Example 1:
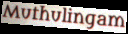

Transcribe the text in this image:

Muthulingam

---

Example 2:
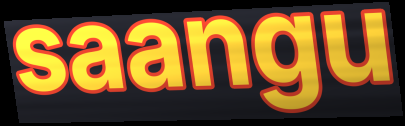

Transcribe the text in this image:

saangu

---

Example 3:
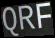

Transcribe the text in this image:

QRF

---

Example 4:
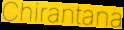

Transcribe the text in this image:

Chirantana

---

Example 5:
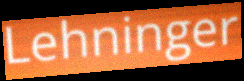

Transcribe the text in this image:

Lehninger